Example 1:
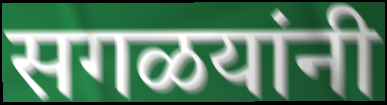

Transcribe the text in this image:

सगळयांनी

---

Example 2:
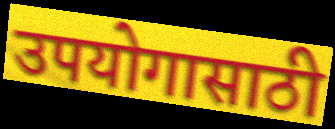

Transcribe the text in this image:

उपयोगासाठी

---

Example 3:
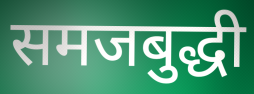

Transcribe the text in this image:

समजबुद्धी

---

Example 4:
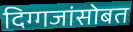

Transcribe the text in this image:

दिग्गजांसोबत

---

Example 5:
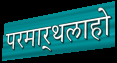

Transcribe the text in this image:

परमार्थलाहो